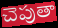
చెపుతా